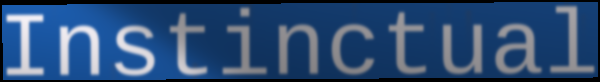
Instinctual